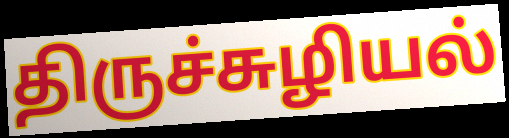
திருச்சுழியல்